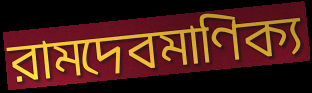
রামদেবমাণিক্য